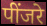
पींजरे